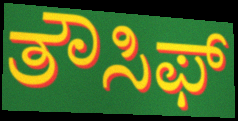
ತೌಸಿಫ್